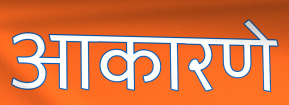
आकारणे